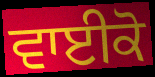
ਵਾਈਕੋ